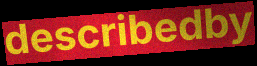
describedby